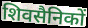
शिवसैनिकों